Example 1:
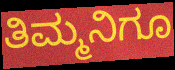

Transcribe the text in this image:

ತಿಮ್ಮನಿಗೂ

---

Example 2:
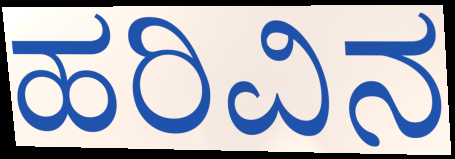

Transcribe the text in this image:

ಹರಿವಿನ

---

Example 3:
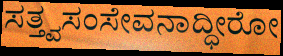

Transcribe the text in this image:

ಸತ್ತ್ವಸಂಸೇವನಾದ್ಧೀರೋ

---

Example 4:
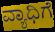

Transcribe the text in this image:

ವ್ಯಾಧಿಗೆ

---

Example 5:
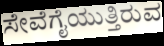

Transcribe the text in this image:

ಸೇವೆಗೈಯುತ್ತಿರುವ